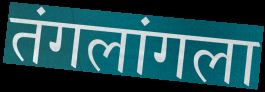
तंगलांगला